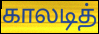
காலடித்